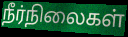
நீர்நிலைகள்